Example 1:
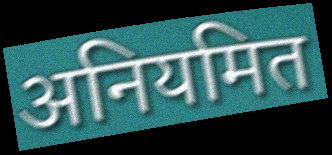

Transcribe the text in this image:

अनियमित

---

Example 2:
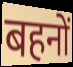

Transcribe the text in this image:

बहनों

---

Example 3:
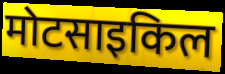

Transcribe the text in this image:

मोटसाइकिल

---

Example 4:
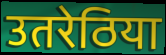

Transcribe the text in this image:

उतरेठिया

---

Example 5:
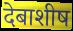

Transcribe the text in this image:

देबाशीष